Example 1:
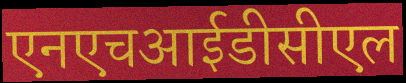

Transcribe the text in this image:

एनएचआईडीसीएल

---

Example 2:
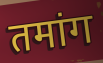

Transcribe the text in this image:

तमांग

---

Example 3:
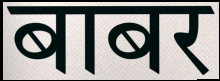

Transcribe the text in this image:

बाबर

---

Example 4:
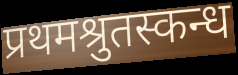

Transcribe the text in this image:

प्रथमश्रुतस्कन्ध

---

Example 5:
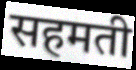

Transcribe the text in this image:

सहमती